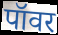
पॉवर